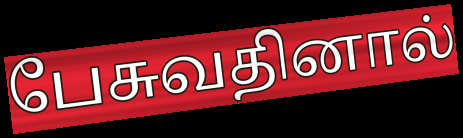
பேசுவதினால்